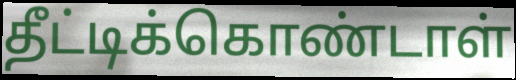
தீட்டிக்கொண்டாள்